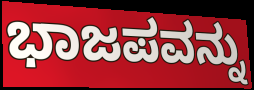
ಭಾಜಪವನ್ನು